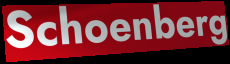
Schoenberg